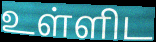
உள்ளிட